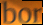
bor